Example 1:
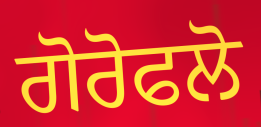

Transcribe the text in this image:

ਗੋਰੋਫਲੋ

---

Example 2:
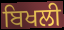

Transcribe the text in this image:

ਬਿਖਲੀ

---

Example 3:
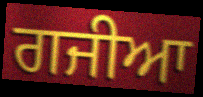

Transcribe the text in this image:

ਗਜੀਆ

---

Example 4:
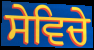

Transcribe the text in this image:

ਸੇਵਿਚੇ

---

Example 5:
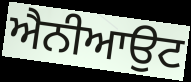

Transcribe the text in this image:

ਐਨੀਆਉਟ